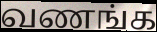
வணங்க